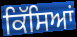
ਕਿੱਸਿਆਂ